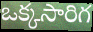
ఒక్కసారిగ